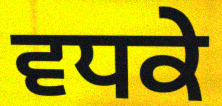
ਵਧਕੇ